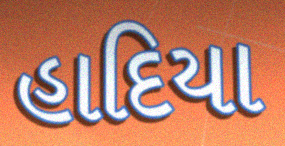
હાદિયા